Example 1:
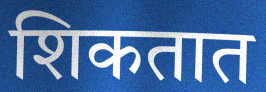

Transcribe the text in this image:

शिकतात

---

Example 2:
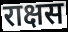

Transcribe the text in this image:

राक्षस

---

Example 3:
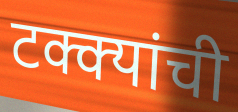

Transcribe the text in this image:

टक्क्यांची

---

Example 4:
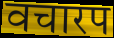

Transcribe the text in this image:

वचारप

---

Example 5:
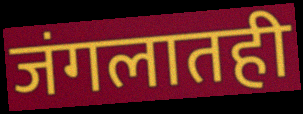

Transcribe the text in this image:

जंगलातही